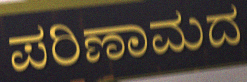
ಪರಿಣಾಮದ